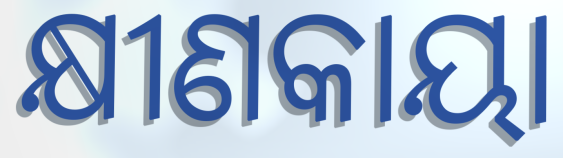
କ୍ଷୀଣକାୟା